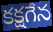
కక్షగేన